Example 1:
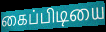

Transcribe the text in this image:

கைப்பிடியை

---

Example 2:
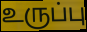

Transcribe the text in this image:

உருப்பு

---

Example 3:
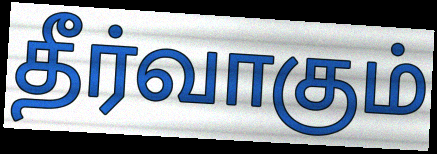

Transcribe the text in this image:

தீர்வாகும்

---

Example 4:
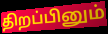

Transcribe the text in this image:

திறப்பினும்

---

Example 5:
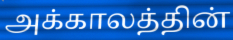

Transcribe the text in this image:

அக்காலத்தின்